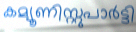
കമ്യൂണിസ്റ്റുപാർട്ടി